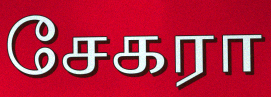
சேகரா